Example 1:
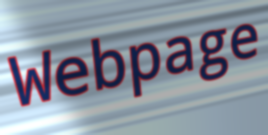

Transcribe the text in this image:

Webpage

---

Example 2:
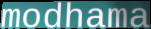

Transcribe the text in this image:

modhama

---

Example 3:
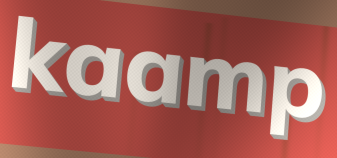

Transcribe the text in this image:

kaamp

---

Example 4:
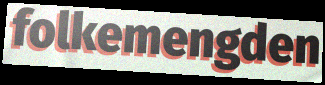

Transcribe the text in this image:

folkemengden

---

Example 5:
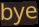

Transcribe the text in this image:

bye